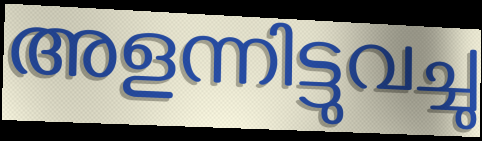
അളന്നിട്ടുവച്ചു